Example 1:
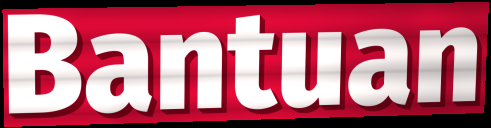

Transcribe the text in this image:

Bantuan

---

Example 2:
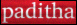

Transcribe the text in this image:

paditha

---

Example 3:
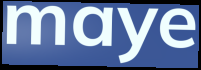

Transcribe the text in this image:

maye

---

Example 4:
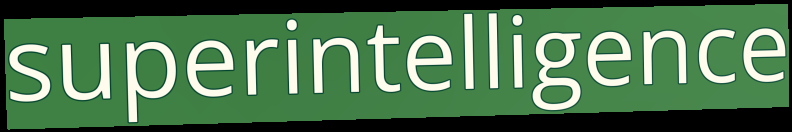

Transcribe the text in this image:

superintelligence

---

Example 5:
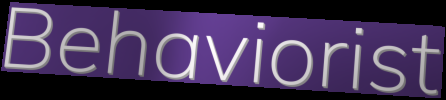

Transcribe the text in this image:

Behaviorist